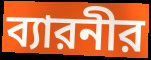
ব্যারনীর